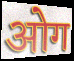
ओग